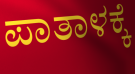
ಪಾತಾಳಕ್ಕೆ